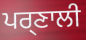
ਪਰ੍ਣਾਲੀ